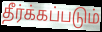
தீர்க்கப்படும்